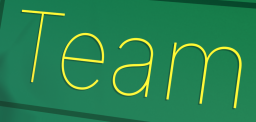
Team